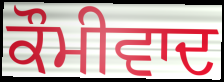
ਕੌਮੀਵਾਦ